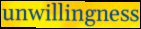
unwillingness